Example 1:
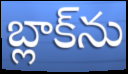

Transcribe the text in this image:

బ్లాక్‌ను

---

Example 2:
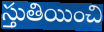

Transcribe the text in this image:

స్తుతియించి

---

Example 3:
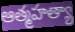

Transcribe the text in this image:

ఆత్మహత్యా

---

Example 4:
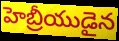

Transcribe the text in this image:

హెబ్రీయుడైన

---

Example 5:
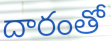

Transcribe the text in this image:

దారంతో